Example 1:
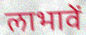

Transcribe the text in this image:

लाभावें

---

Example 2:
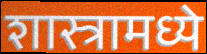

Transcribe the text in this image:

शास्त्रामध्ये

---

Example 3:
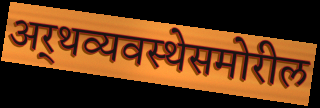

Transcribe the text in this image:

अर्थव्यवस्थेसमोरील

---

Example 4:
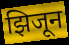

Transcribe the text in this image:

झिजून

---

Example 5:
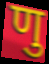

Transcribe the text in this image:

णु